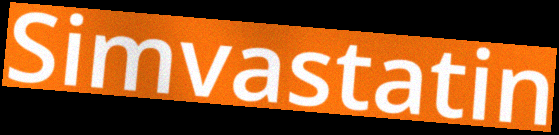
Simvastatin